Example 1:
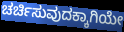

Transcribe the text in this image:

ಚರ್ಚಿಸುವುದಕ್ಕಾಗಿಯೇ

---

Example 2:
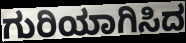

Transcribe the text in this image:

ಗುರಿಯಾಗಿಸಿದ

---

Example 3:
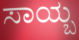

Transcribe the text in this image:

ಸಾಯ್ಬ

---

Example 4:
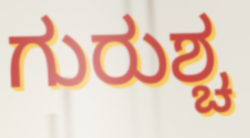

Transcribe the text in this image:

ಗುರುಶ್ಚ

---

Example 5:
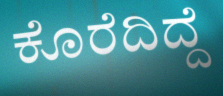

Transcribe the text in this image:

ಕೊರೆದಿದ್ದೆ